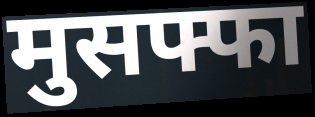
मुसफ्फा